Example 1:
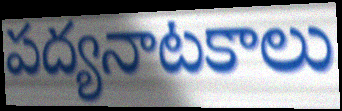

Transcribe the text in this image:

పద్యనాటకాలు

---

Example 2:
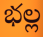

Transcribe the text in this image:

భల్ల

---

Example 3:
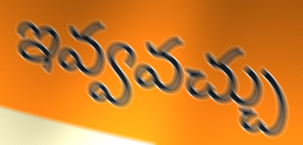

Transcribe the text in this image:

ఇవ్వవచ్చు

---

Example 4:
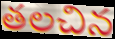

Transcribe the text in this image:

తలచిన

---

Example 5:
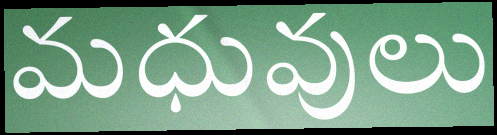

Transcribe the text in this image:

మధువులు